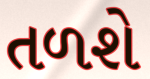
તળશે